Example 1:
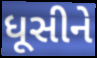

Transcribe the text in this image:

ધૂસીને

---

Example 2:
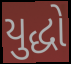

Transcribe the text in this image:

યુદ્ધો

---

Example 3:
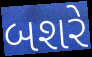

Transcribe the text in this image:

બશરે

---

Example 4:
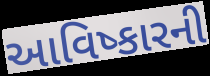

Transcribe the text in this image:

આવિષ્કારની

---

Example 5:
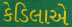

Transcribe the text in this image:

કેડિલાએ